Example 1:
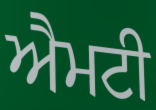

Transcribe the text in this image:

ਐਮਟੀ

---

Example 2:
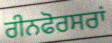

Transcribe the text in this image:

ਰੀਨਫੋਰਸਰਾਂ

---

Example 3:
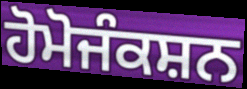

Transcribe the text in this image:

ਹੋਮੋਜੰਕਸ਼ਨ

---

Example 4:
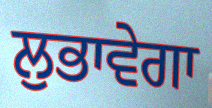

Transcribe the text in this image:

ਲੁਭਾਵੇਗਾ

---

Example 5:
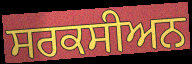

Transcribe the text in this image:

ਸਰਕਸੀਅਨ